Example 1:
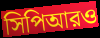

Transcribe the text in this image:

সিপিআরও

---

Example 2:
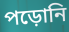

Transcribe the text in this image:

পড়োনি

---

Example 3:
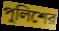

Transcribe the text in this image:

পুলিশের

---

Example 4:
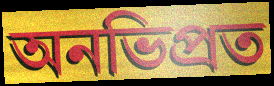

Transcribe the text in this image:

অনভিপ্রত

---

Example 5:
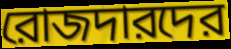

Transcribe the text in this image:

রোজদারদের